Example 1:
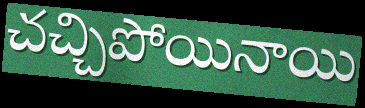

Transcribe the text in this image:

చచ్చిపోయినాయి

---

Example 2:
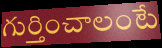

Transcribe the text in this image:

గుర్తించాలంటే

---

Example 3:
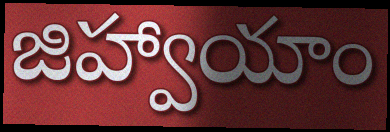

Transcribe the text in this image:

జిహ్వాయాం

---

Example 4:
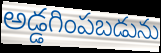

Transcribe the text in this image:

అడ్డగింపబడును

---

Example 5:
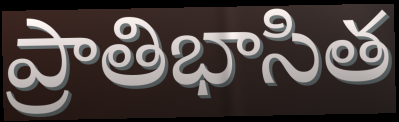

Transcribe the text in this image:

ప్రాతిభాసిత